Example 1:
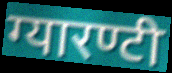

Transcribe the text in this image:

ग्यारण्टी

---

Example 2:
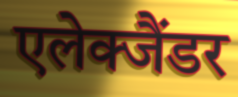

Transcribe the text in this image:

एलेक्जैंडर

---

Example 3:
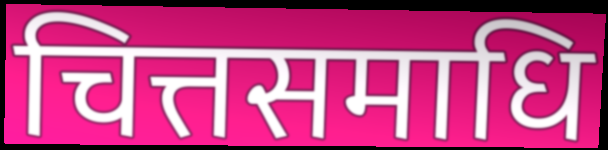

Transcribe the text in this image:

चित्तसमाधि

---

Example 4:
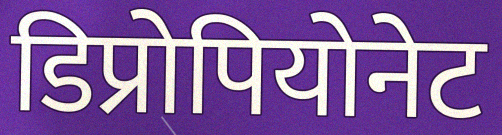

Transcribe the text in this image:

डिप्रोपियोनेट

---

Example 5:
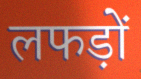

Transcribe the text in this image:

लफड़ों